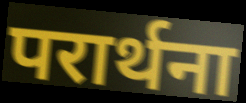
परार्थना